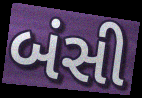
બંસી